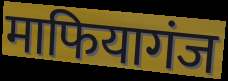
माफियागंज